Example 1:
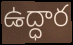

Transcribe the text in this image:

ఉద్ధార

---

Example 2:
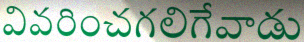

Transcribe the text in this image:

వివరించగలిగేవాడు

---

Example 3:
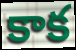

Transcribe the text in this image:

కాక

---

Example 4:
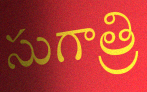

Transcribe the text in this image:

సుగాత్రి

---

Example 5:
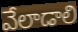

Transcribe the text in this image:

వేలాడాలి